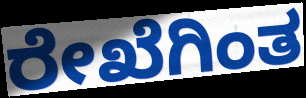
ರೇಖೆಗಿಂತ